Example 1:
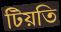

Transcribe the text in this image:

টিয়তি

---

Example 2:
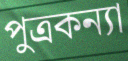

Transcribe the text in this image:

পুত্রকন্যা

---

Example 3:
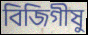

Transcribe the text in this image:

বিজিগীষু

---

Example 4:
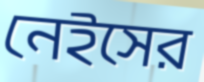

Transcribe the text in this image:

নেইসের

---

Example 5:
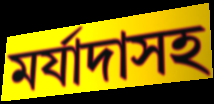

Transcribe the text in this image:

মর্যাদাসহ